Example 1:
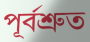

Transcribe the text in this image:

পূর্বশ্রুত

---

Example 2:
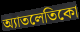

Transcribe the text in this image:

অ্যাতলেতিকো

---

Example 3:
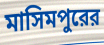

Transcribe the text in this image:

মাসিমপুরের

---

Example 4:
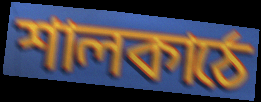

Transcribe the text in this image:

শালকাঠে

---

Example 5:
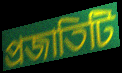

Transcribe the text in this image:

প্রজাতিটি